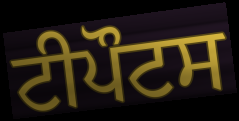
ਟੀਪੌਟਸ